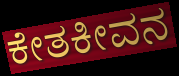
ಕೇತಕೀವನ